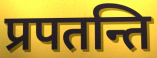
प्रपतन्ति